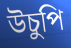
উচুপি